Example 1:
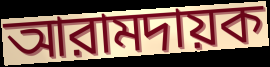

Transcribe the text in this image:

আরামদায়ক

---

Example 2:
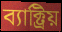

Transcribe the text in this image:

ব্যাক্ট্রিয়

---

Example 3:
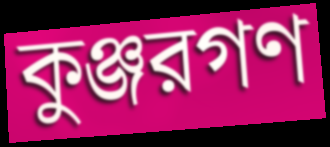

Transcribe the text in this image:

কুঞ্জরগণ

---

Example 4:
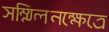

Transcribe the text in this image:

সম্মিলনক্ষেত্রে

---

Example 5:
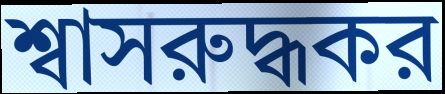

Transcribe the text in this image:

শ্বাসরুদ্ধকর